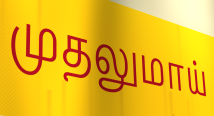
முதலுமாய்